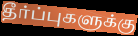
தீர்ப்புகளுக்கு